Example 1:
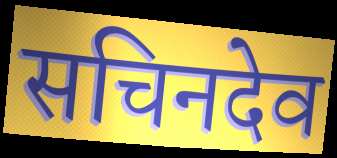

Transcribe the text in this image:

सचिनदेव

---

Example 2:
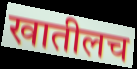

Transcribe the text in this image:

खातीलच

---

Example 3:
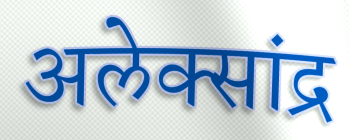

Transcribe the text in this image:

अलेक्सांद्र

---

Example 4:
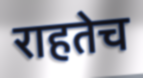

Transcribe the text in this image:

राहतेच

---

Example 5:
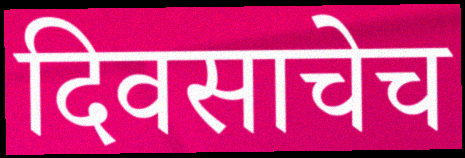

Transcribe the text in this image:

दिवसाचेच